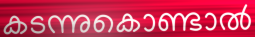
കടന്നുകൊണ്ടാൽ